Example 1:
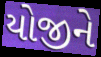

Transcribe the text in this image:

યોજીને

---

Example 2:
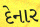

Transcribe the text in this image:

દેનાર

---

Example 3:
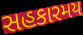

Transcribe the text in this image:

સહકારમય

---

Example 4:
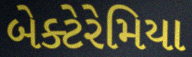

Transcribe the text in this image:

બેક્ટેરેમિયા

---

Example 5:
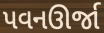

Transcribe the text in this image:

પવનઊર્જા